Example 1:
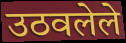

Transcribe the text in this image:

उठवलेले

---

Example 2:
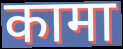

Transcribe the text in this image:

कामा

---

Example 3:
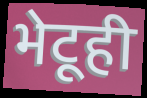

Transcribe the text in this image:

भेटूही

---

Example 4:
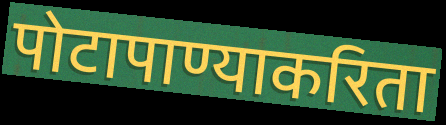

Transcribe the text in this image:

पोटापाण्याकरिता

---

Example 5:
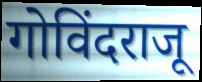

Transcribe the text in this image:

गोविंदराजू